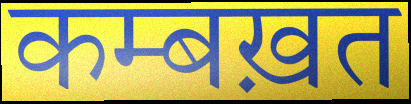
कम्बख़त